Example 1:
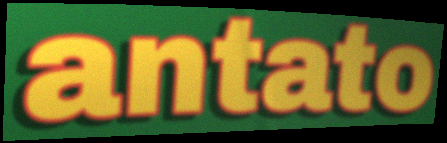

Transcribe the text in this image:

antato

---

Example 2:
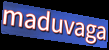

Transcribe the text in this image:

maduvaga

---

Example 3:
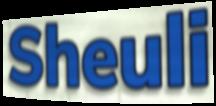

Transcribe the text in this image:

Sheuli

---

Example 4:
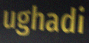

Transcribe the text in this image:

ughadi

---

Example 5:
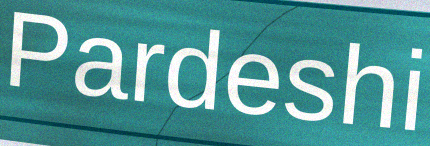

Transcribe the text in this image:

Pardeshi